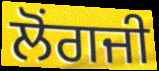
ਲੋਂਗਜੀ